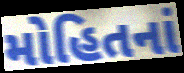
મોહિતનાં